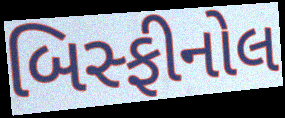
બિસ્ફીનોલ